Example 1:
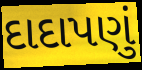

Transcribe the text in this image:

દાદાપણું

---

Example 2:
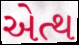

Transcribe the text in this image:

એત્થ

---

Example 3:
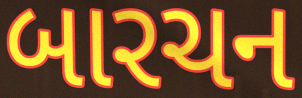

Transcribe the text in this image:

બારચન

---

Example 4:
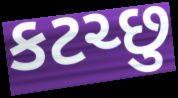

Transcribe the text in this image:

કટચ્છુ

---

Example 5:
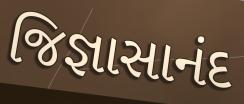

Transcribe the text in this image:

જિજ્ઞાસાનંદ